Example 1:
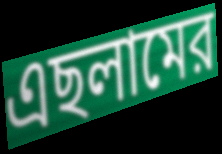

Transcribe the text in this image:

এছলামের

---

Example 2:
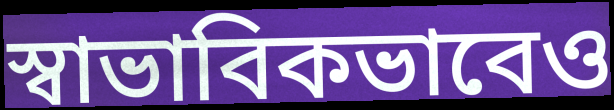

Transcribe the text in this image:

স্বাভাবিকভাবেও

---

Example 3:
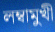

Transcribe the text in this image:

লম্বামুখী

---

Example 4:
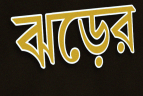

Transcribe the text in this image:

ঝড়ের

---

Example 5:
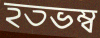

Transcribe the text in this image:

হতভম্ব